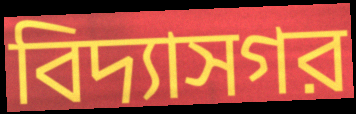
বিদ্যাসগর